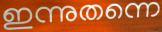
ഇന്നുതന്നെ